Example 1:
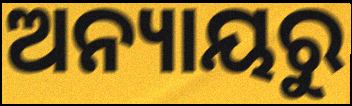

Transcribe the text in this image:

ଅନ୍ୟାୟରୁ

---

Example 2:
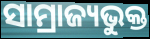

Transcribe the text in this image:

ସାମ୍ରାଜ୍ୟଭୁକ୍ତ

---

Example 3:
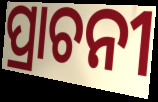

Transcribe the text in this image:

ପ୍ରାଚନୀ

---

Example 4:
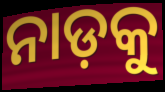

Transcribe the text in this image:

ନାଡ଼କୁ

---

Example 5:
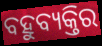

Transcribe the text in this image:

ବହୁବ୍ୟକ୍ତିର